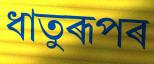
ধাতুৰূপৰ